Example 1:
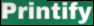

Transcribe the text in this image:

Printify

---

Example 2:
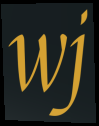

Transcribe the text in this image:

wj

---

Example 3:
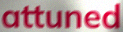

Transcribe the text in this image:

attuned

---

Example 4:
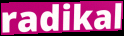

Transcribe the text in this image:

radikal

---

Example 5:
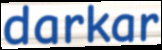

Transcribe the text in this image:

darkar